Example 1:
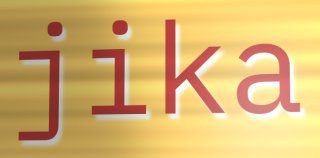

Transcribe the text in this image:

jika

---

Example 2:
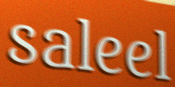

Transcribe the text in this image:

saleel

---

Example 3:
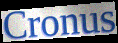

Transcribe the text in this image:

Cronus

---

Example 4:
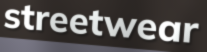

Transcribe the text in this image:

streetwear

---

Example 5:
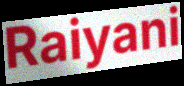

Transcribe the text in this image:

Raiyani